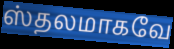
ஸ்தலமாகவே